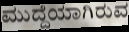
ಮುದ್ದೆಯಾಗಿರುವ